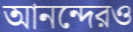
আনন্দেরও